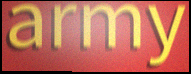
army